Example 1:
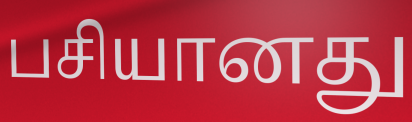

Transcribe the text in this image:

பசியானது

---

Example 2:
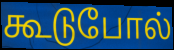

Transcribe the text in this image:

கூடுபோல்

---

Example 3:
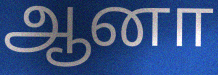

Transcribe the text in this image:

ஆனா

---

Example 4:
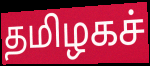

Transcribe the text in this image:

தமிழகச்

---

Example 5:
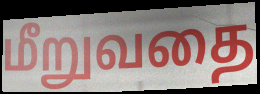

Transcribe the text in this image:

மீறுவதை